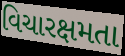
વિચારક્ષમતા